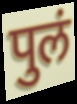
पुलं